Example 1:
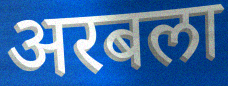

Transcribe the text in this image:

अरबला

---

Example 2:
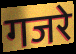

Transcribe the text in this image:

गजरे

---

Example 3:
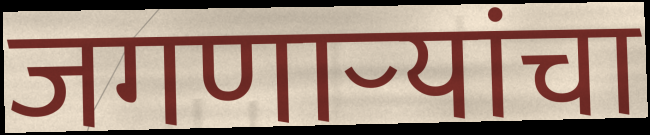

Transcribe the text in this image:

जगणाऱ्यांचा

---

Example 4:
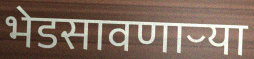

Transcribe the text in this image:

भेडसावणाऱ्या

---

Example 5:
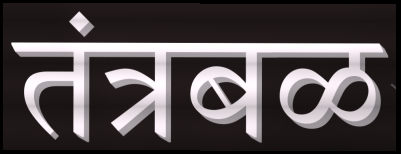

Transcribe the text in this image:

तंत्रबळ